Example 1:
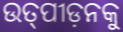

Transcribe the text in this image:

ଉତ୍‌ପୀଡ଼ନକୁ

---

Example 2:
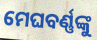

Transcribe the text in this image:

ମେଘବର୍ଣ୍ଣଙ୍କୁ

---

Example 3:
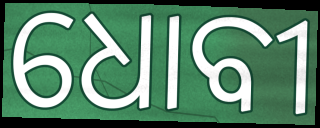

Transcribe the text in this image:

ଧୋବୀ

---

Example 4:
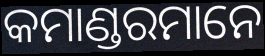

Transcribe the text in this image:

କମାଣ୍ଡରମାନେ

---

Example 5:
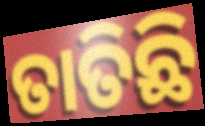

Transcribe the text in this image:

ତାତିଛି